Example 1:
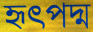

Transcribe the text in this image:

হৃৎপদ্ম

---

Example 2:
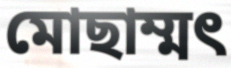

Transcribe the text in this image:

মোছাম্মৎ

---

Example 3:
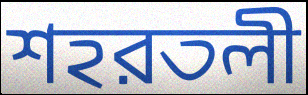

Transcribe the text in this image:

শহরতলী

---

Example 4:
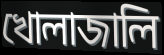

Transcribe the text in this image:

খোলাজালি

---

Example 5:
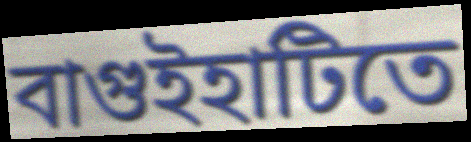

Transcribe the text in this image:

বাগুইহাটিতে